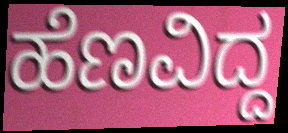
ಹೆಣವಿದ್ದ